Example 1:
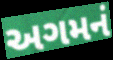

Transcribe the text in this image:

અગમનં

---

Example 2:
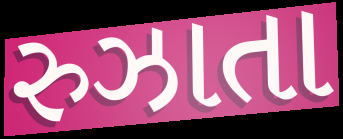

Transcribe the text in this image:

રુઝાતા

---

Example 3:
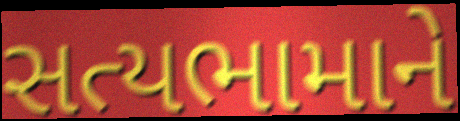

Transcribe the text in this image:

સત્યભામાને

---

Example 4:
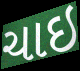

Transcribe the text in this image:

ચાઇ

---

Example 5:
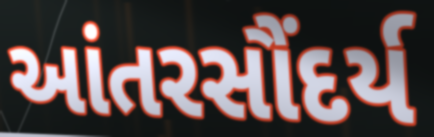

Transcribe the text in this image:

આંતરસૌંદર્ય